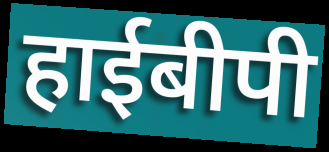
हाईबीपी